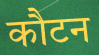
कौटन